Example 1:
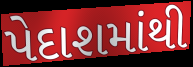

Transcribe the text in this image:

પેદાશમાંથી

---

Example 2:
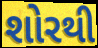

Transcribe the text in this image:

શોરથી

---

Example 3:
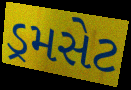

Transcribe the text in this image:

ડ્રમસેટ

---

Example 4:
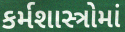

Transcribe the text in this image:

કર્મશાસ્ત્રોમાં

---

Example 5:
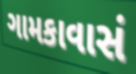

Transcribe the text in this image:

ગામકાવાસં